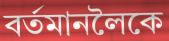
বৰ্তমানলৈকে